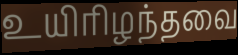
உயிரிழந்தவை